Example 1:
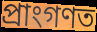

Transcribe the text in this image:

প্ৰাংগণত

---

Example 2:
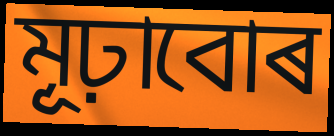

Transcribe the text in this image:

মূঢ়াবোৰ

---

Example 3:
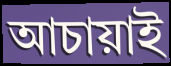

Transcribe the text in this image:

আচায়াই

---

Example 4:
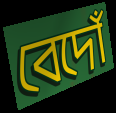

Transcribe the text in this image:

বেদোঁ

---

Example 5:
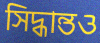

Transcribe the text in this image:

সিদ্ধান্তও